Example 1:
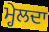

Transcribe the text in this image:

ਮ੍ਹੇਲਦਾ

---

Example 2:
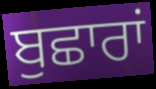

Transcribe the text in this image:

ਬੁਛਾਰਾਂ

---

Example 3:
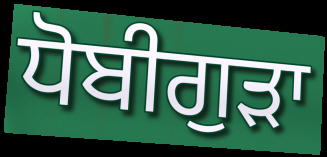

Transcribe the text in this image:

ਧੋਬੀਗੁੜਾ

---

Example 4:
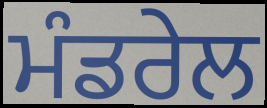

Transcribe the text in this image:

ਮੰਡਰੇਲ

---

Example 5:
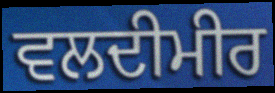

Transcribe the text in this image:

ਵਲਦੀਮੀਰ